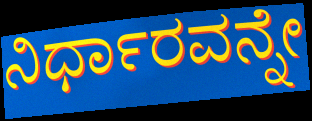
ನಿರ್ಧಾರವನ್ನೇ